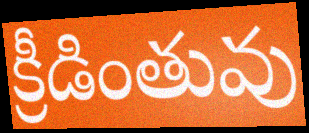
క్రీడింతువు